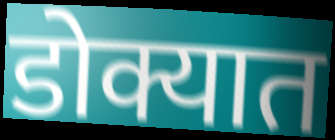
डोक्यात